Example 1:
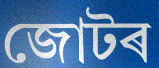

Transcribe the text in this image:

জোটৰ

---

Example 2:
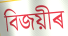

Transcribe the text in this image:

বিজয়ীৰ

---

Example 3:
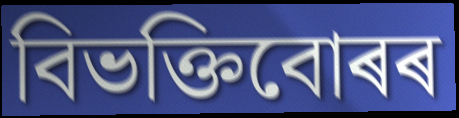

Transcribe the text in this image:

বিভক্তিবোৰৰ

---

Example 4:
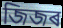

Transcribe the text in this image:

জিজৰ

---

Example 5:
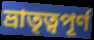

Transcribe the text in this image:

ভ্ৰাতৃত্বপূৰ্ণ